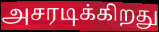
அசரடிக்கிறது